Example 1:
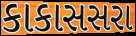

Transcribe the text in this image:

કાકાસસરા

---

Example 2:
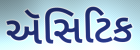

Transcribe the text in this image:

ઍસિટિક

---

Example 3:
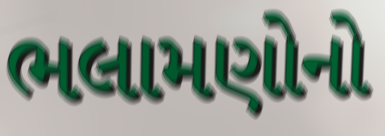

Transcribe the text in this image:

ભલામણોનો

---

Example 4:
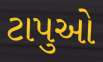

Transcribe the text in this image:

ટાપુઓ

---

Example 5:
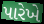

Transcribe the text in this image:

પારેખે